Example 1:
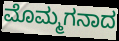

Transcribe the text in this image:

ಮೊಮ್ಮಗನಾದ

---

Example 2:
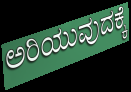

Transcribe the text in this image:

ಅರಿಯುವುದಕ್ಕೆ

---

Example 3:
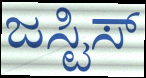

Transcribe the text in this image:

ಜಸ್ಟಿಸ್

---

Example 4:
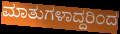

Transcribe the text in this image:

ಮಾತುಗಳಾದ್ದರಿಂದ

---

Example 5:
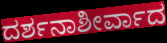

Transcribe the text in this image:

ದರ್ಶನಾಶೀರ್ವಾದ